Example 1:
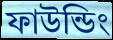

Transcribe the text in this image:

ফাউন্ডিং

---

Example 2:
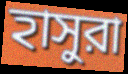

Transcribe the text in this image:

হাসুরা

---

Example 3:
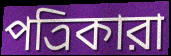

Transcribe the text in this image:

পত্রিকারা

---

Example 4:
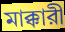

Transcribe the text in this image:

মাক্কারী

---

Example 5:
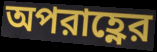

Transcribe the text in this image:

অপরাহ্ণের